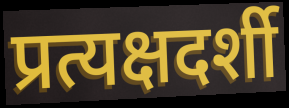
प्रत्यक्षदर्शी